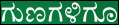
ಗುಣಗಳಿಗೂ